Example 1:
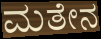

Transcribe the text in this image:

ಮತೇನ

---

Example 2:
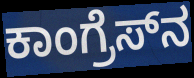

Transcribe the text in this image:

ಕಾಂಗ್ರೆಸ್‍ನ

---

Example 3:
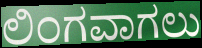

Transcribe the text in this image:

ಲಿಂಗವಾಗಲು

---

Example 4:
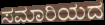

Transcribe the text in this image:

ಸಮಾರಿಯದ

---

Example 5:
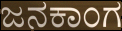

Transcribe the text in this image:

ಜನಕಾಂಗ